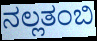
ನಲ್ಲತಂಬಿ